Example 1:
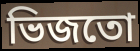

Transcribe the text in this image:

ভিজতো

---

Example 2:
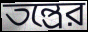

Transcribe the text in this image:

তন্ত্রের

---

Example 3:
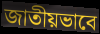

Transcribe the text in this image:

জাতীয়ভাবে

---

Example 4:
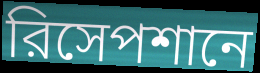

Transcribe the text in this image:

রিসেপশানে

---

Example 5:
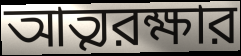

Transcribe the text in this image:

আত্মরক্ষার